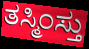
ತಸ್ಮಿಂಸ್ತು